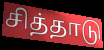
சித்தாடு